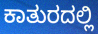
ಕಾತುರದಲ್ಲಿ